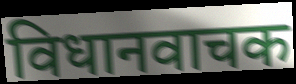
विधानवाचक